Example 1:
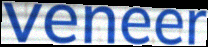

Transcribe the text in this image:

veneer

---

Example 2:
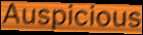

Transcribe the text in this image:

Auspicious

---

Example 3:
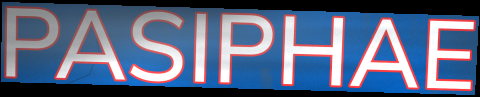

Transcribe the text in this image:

PASIPHAE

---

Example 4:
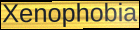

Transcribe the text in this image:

Xenophobia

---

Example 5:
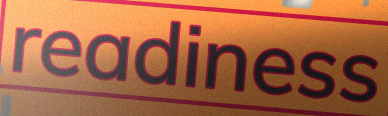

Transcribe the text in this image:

readiness